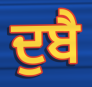
ਦੁਬੈ